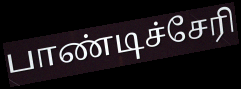
பாண்டிச்சேரி